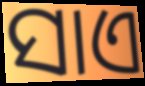
ସାଏ